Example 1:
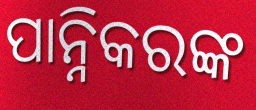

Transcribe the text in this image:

ପାନ୍ନିକରଙ୍କ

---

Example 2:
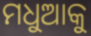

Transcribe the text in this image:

ମଧୁଆକୁ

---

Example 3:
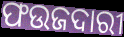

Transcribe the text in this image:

ଫଉଜଦାରୀ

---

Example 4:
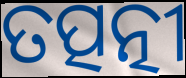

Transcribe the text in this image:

ତତ୍ପତ୍ନୀ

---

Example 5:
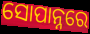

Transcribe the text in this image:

ସୋପାନ୍ନରେ